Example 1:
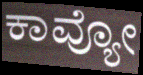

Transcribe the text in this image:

ಕಾವ್ಯೋ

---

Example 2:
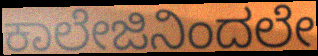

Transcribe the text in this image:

ಕಾಲೇಜಿನಿಂದಲೇ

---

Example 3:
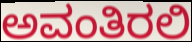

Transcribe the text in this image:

ಅವಂತಿರಲಿ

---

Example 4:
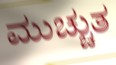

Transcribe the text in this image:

ಮುಚ್ಚುತ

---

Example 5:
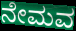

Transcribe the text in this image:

ನೇಮವ